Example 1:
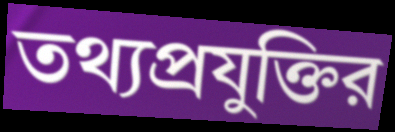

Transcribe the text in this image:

তথ্যপ্রযুক্তির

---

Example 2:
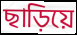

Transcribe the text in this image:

ছাড়িয়ে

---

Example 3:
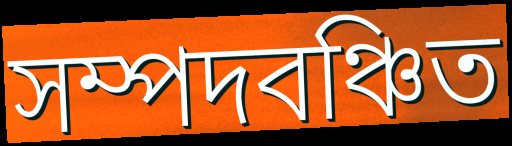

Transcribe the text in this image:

সম্পদবঞ্চিত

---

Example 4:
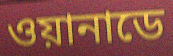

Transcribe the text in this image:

ওয়ানাডে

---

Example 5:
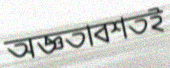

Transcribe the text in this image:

অজ্ঞতাবশতই